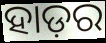
ହାଡ଼ର